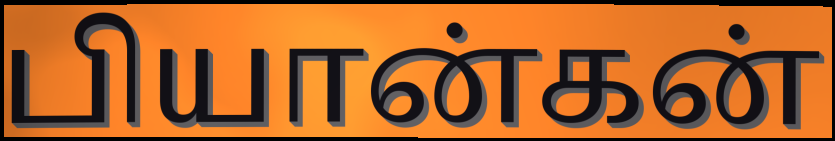
பியான்கன்